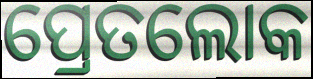
ପ୍ରେତଲୋକ